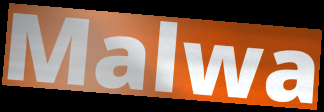
Malwa